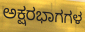
ಅಕ್ಷರಭಾಗಗಳ